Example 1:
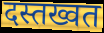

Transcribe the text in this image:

दस्तख्वत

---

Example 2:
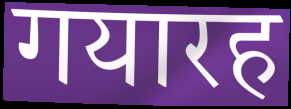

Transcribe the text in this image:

गयारह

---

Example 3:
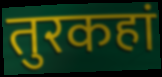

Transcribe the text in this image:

तुरकहां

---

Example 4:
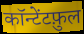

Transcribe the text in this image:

कॉन्टेंटफ़ुल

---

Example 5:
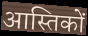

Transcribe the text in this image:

आस्तिकों